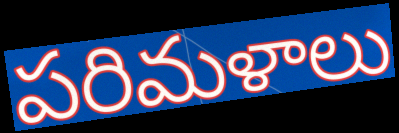
పరిమళాలు